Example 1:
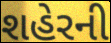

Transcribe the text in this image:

શહેરની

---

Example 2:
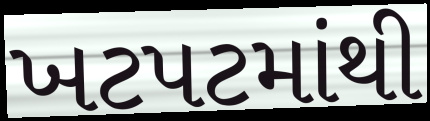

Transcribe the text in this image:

ખટપટમાંથી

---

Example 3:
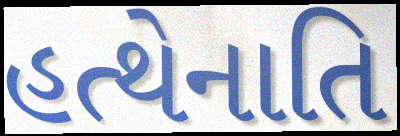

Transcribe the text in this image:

હત્થેનાતિ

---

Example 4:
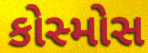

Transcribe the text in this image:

કોસ્મોસ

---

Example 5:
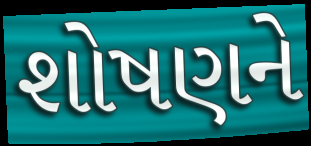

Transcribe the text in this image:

શોષણને